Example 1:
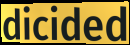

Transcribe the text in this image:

dicided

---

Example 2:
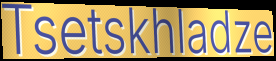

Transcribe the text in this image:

Tsetskhladze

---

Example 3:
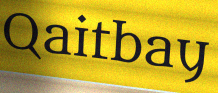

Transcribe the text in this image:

Qaitbay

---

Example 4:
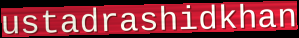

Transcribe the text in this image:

ustadrashidkhan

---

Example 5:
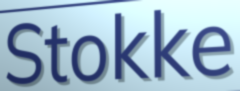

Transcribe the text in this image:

Stokke